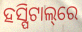
ହସ୍ପିଟାଲ୍‌ରେ